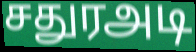
சதுரஅடி